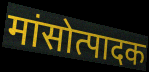
मांसोत्पादक